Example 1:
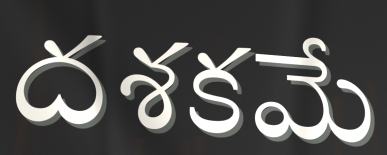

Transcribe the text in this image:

దశకమే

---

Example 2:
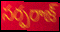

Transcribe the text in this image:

సర్ఫరాజ్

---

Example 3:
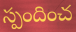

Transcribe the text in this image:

స్పందించ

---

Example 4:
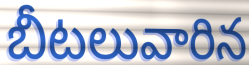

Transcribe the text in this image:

బీటలువారిన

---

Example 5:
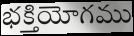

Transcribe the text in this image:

భక్తియోగము